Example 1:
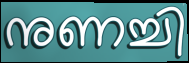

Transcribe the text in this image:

നുണച്ചി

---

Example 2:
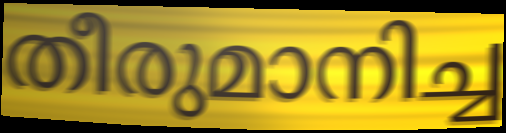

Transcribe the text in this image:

തീരുമാനിച്ച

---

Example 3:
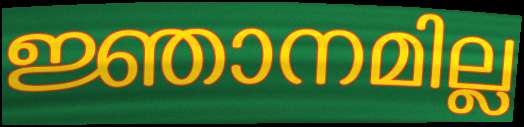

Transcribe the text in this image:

ജ്ഞാനമില്ല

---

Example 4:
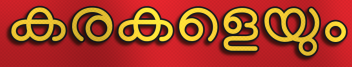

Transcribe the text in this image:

കരകളെയും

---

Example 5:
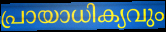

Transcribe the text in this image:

പ്രായാധിക്യവും